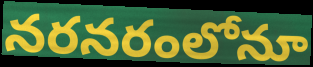
నరనరంలోనూ